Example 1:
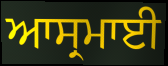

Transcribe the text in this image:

ਆਸ੍ਰਮਾਈ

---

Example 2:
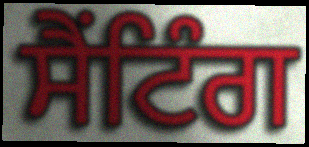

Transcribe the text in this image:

ਸੈਂਟਿੰਗ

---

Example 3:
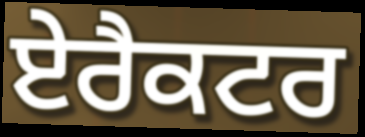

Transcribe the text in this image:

ਏਰੈਕਟਰ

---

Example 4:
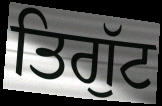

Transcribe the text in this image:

ਤਿਗੁੱਟ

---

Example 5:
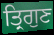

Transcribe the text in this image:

ਤ੍ਰਿਗੁਣ